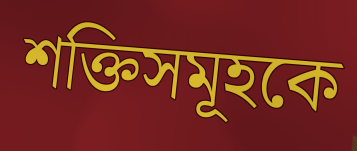
শক্তিসমূহকে